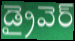
డ్రైవెర్